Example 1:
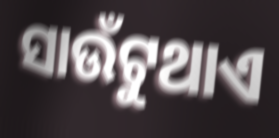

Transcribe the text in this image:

ସାଉଁଟୁଥାଏ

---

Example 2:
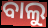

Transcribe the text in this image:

ବାଲୁ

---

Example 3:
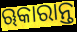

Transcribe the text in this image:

ୠକାରାନ୍ତ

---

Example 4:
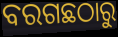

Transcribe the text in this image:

ବରଗଛଠାରୁ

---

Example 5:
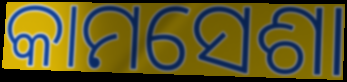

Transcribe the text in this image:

କାମସେଶା